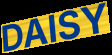
DAISY